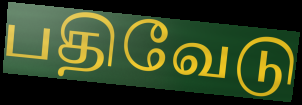
பதிவேடு